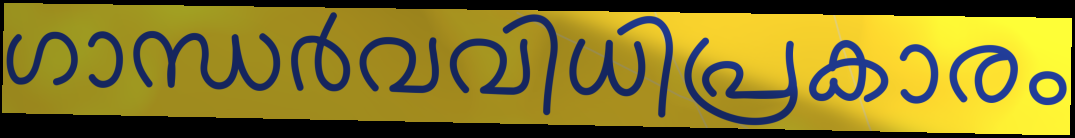
ഗാന്ധർവവിധിപ്രകാരം